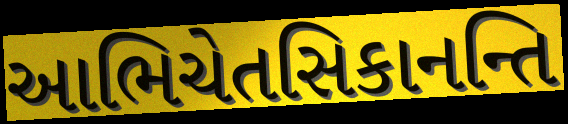
આભિચેતસિકાનન્તિ